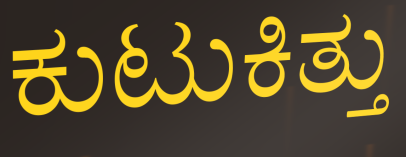
ಕುಟುಕಿತ್ತು